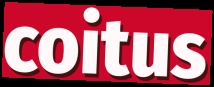
coitus